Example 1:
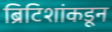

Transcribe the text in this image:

ब्रिटिशांकडून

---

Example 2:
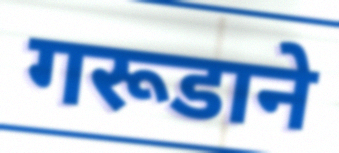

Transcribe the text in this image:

गरूडाने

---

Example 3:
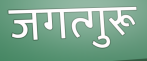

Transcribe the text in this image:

जगत्गुरू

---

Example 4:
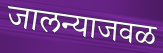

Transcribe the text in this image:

जालन्याजवळ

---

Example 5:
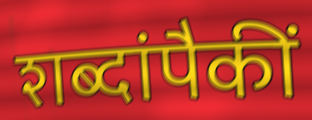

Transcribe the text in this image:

शब्दांपैकीं